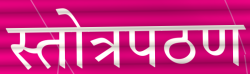
स्तोत्रपठण